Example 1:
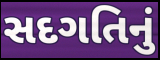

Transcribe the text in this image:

સદગતિનું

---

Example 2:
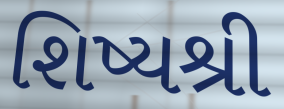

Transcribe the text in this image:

શિષ્યશ્રી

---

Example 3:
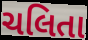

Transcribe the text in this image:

ચલિતા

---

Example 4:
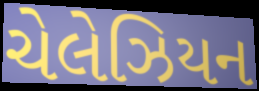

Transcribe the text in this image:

ચેલેઝિયન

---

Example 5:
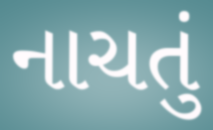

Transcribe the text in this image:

નાચતું